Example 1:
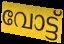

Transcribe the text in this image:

വോട്ട്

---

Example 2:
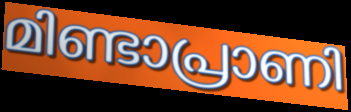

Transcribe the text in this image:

മിണ്ടാപ്രാണി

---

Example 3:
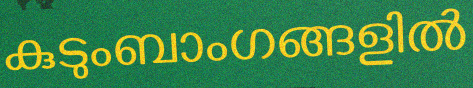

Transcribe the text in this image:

കുടുംബാംഗങ്ങളിൽ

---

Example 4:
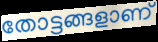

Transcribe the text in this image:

തോട്ടങ്ങളാണ്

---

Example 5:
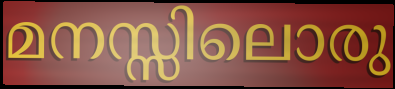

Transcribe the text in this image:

മനസ്സിലൊരു